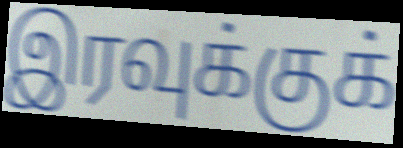
இரவுக்குக்